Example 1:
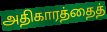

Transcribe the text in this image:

அதிகாரத்தைத்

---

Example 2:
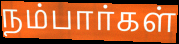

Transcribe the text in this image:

நம்பார்கள்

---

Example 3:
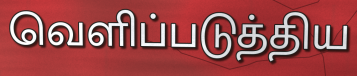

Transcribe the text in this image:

வெளிப்படுத்திய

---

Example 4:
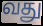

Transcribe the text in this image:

வது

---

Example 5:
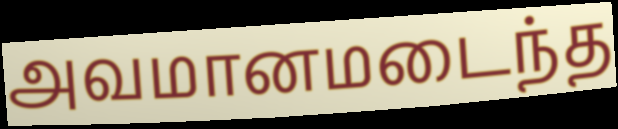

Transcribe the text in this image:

அவமானமடைந்த